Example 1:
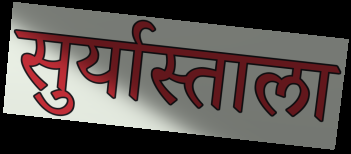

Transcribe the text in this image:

सुर्यास्ताला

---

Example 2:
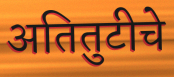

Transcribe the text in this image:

अतितुटीचे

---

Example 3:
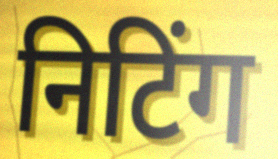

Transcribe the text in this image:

निटिंग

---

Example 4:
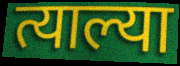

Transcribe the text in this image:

त्याल्या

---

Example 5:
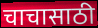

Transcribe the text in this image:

चाचासाठी